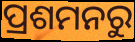
ପ୍ରଶମନରୁ